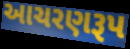
આચરણરૂપ